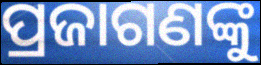
ପ୍ରଜାଗଣଙ୍କୁ